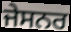
ਜੇਸਨਰ